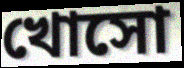
খোসো